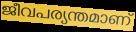
ജീവപര്യന്തമാണ്